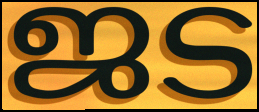
ജട